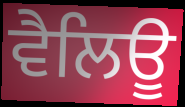
ਵੈਲਿਊ